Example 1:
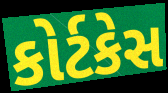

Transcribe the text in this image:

કોર્ટકેસ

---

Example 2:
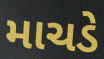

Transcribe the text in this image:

માચડે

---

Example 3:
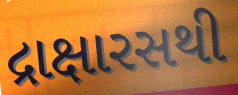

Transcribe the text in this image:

દ્રાક્ષારસથી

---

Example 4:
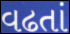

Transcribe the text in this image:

વઢતાં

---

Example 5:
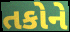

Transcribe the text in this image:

તકોને